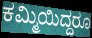
ಕಮ್ಮಿಯಿದ್ದರೂ